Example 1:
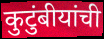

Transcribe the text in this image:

कुटुंबीयांची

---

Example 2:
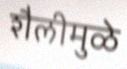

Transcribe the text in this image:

शैलीमुळे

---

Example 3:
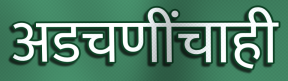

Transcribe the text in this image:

अडचणींचाही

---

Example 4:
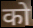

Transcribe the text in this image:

को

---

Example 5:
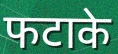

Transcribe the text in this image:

फटाके